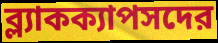
ব্ল্যাকক্যাপসদের